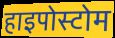
हाइपोस्टोम